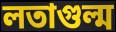
লতাগুল্ম